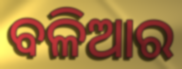
ବଳିଆର